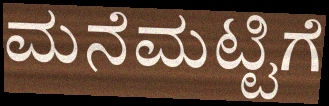
ಮನೆಮಟ್ಟಿಗೆ